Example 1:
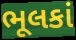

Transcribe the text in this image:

ભૂલકાં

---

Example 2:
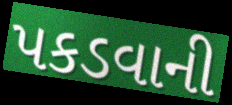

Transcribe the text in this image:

પકડવાની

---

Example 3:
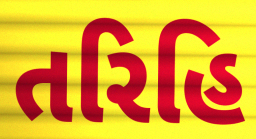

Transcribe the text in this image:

તરિહિ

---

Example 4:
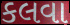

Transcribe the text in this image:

કલવા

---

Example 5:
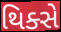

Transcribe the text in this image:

થિક્સે